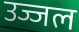
उज्जल